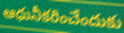
ఆధునీకరించేందుకు